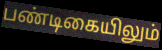
பண்டிகையிலும்